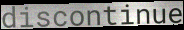
discontinue